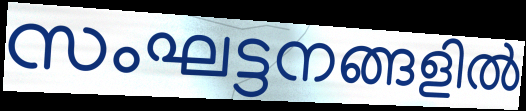
സംഘട്ടനങ്ങളിൽ